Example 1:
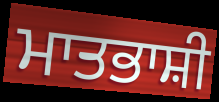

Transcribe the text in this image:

ਮਾਤਭਾਸ਼ੀ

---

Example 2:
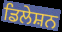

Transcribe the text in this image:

ਡਿਲੇਸ਼ਨ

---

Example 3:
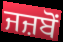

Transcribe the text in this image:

ਜਜ਼ਬੋਂ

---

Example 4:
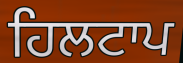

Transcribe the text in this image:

ਹਿਲਟਾਪ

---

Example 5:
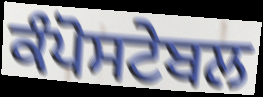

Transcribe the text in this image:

ਕੰਪੋਸਟੇਬਲ